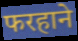
फरहाने